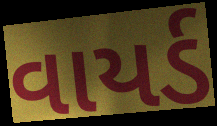
વાયર્ડ